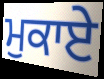
ਮੁਕਾਏ